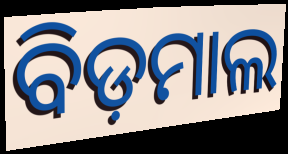
ବିଡ଼ମାଲ